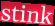
stink